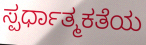
ಸ್ಪರ್ಧಾತ್ಮಕತೆಯ